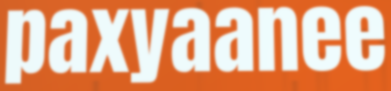
paxyaanee